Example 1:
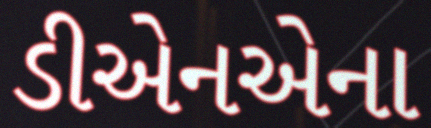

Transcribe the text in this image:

ડીએનએના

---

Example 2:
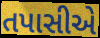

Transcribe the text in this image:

તપાસીએ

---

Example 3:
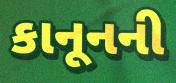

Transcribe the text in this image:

કાનૂનની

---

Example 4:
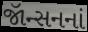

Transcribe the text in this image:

જૉન્સનનાં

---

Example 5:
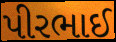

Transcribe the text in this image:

પીરભાઈ